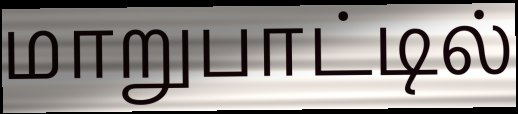
மாறுபாட்டில்